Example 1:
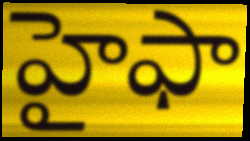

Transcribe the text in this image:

హైఫా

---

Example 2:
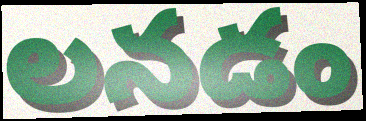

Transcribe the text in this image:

లనడం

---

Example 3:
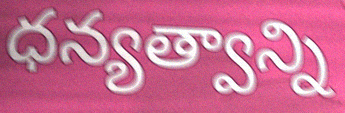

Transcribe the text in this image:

ధన్యత్వాన్ని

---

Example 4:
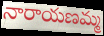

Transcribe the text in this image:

నారాయణమ్మ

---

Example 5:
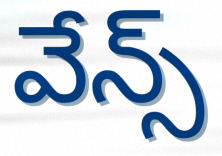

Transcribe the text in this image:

వేన్స్